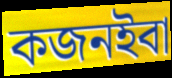
কজনইবা